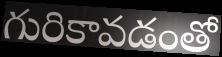
గురికావడంతో